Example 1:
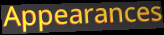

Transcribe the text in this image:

Appearances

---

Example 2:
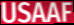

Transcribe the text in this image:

USAAF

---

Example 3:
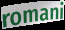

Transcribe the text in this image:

romani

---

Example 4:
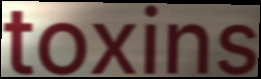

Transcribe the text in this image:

toxins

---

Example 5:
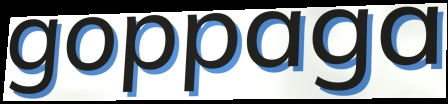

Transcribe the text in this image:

goppaga